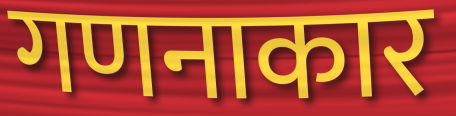
गणनाकार